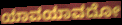
ಯಾವಯಾವದೋ